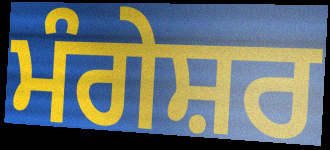
ਮੰਗੇਸ਼ਰ